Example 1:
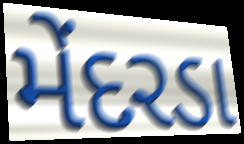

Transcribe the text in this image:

મેંદરડા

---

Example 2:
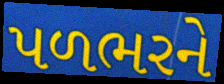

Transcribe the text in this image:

પળભરને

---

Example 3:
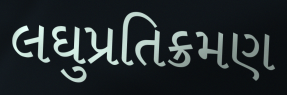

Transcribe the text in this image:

લઘુપ્રતિક્રમણ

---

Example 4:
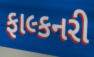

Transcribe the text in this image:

ફાલ્કનરી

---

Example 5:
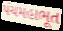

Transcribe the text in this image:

પંચમહાભૂત